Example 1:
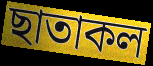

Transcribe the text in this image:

ছাতাকল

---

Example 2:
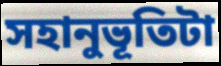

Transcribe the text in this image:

সহানুভূতিটা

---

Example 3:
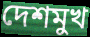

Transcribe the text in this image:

দেশমুখ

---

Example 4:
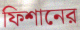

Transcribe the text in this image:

ফিশানের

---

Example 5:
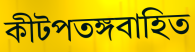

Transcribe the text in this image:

কীটপতঙ্গবাহিত